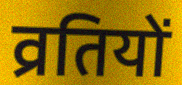
व्रतियों